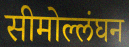
सीमोल्लंघन